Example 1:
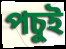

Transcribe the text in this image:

পচুই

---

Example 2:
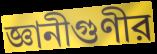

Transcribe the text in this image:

জ্ঞানীগুণীর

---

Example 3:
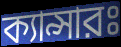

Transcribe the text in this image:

ক্যান্সারঃ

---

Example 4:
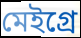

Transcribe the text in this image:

মেইগ্রে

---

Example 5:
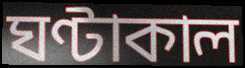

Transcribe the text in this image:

ঘণ্টাকাল